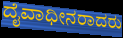
ದೈವಾಧೀನರಾದರು